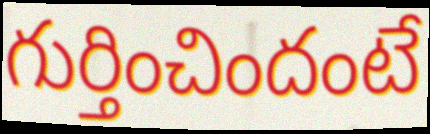
గుర్తించిందంటే